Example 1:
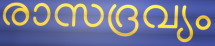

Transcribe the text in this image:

രാസദ്രവ്യം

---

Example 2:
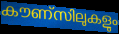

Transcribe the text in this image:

കൗണ്സിലുകളും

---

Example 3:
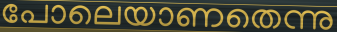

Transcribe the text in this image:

പോലെയാണതെന്നു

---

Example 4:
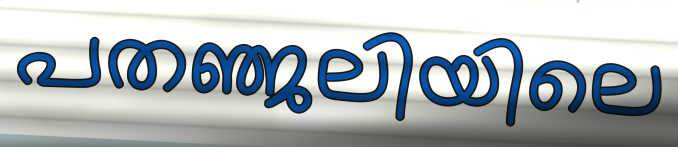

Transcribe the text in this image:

പതഞ്ജലിയിലെ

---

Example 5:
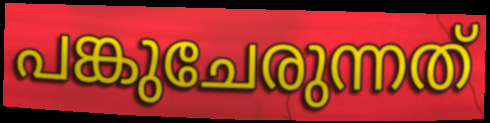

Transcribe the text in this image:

പങ്കുചേരുന്നത്